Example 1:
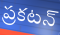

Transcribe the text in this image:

ప్రకటన్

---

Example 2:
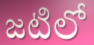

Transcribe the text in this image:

జటిలో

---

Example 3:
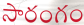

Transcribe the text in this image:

సారంగం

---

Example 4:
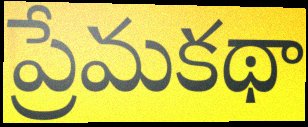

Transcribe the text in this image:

ప్రేమకథా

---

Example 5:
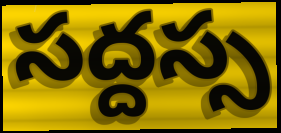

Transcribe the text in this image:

సద్దస్స